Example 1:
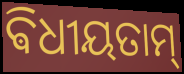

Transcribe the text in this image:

ଵିଧୀୟତାମ୍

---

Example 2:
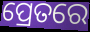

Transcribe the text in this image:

ପ୍ରେତରେ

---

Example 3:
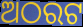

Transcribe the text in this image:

ଅଠରଟ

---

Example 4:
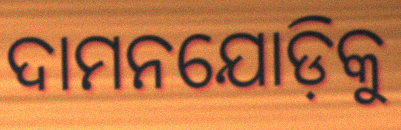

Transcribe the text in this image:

ଦାମନଯୋଡ଼ିକୁ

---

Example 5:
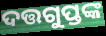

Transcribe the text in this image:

ଦତ୍ତଗୁପ୍ତଙ୍କ